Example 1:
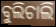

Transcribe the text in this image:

ବୁଲିଚାଲି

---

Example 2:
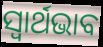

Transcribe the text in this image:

ସ୍ଵାର୍ଥଭାବ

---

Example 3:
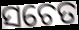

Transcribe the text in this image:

ସଚେତ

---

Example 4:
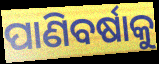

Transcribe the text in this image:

ପାଣିବର୍ଷାକୁ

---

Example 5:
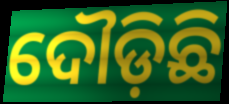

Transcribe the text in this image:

ଦୌଡ଼ିଛି